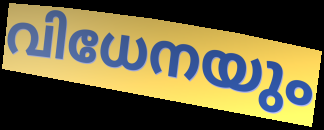
വിധേനയും